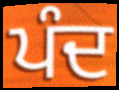
ਪੰਦ